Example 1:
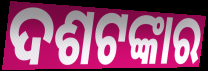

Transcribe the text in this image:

ଦଶଟଙ୍କାର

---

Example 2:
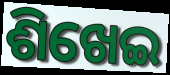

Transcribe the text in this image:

ଶିଖେଇ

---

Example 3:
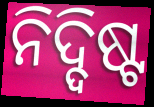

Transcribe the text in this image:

ନିଦ୍ଦିଷ୍ଟ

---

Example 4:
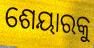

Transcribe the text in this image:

ଶେୟାରକୁ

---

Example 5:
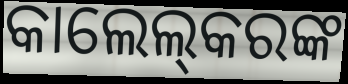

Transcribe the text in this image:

କାଲେଲ୍‌କରଙ୍କ